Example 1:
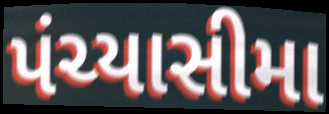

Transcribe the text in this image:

પંચ્યાસીમા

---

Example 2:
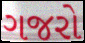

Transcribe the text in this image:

ગજરો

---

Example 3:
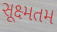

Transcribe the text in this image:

સૂક્ષ્મતમ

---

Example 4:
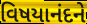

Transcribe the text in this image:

વિષયાનંદને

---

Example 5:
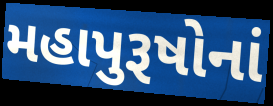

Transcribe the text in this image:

મહાપુરૂષોનાં